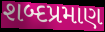
શબ્દપ્રમાણ